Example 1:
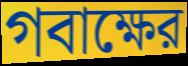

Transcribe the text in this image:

গবাক্ষের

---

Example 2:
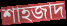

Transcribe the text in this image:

শাহজাদ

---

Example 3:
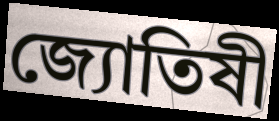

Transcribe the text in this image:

জ্যোতিষী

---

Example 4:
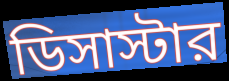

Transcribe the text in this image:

ডিসাস্টার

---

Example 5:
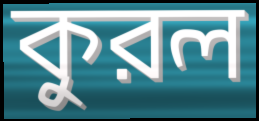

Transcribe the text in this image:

কুরল